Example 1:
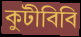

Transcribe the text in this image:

কুটীবিবি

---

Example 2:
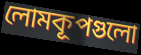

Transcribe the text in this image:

লোমকূপগুলো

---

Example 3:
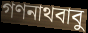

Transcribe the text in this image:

গণনাথবাবু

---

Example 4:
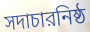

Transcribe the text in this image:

সদাচারনিষ্ঠ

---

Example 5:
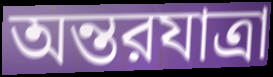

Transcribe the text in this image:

অন্তরযাত্রা